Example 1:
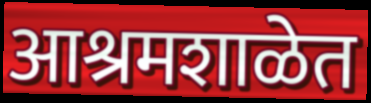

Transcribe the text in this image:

आश्रमशाळेत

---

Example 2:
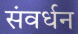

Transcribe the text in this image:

संवर्धन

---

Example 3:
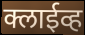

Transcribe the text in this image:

क्लाईव्ह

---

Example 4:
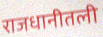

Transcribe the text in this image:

राजधानीतली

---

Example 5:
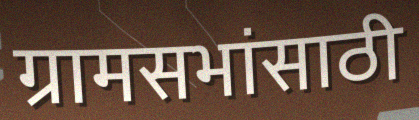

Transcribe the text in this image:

ग्रामसभांसाठी